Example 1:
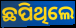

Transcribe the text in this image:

ଛପିଥିଲେ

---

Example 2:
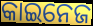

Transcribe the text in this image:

କାଇନେଜ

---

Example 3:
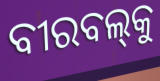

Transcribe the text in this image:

ବୀରବଲ୍‌କୁ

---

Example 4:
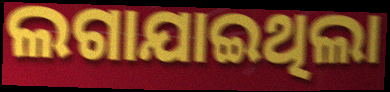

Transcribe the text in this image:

ଲଗାଯାଇଥିଲା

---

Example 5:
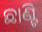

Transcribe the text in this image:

ଛାଣ୍ଟି